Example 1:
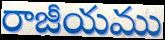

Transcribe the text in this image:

రాజీయము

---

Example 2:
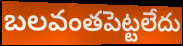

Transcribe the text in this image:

బలవంతపెట్టలేదు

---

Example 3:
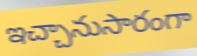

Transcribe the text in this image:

ఇచ్చానుసారంగా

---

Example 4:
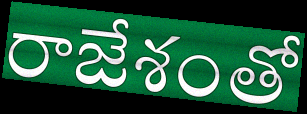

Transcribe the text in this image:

రాజేశంతో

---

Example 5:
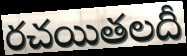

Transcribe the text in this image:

రచయితలదీ